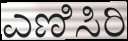
ಎಣಿಸಿರಿ